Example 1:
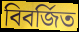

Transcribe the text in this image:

বিবর্জিত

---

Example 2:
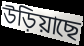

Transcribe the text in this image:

উড়িয়াছে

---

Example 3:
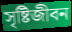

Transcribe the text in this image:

সৃষ্টিজীবন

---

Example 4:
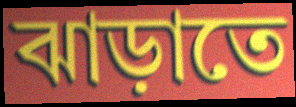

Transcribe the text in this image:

ঝাড়াতে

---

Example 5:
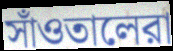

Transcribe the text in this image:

সাঁওতালেরা